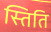
स्तिति